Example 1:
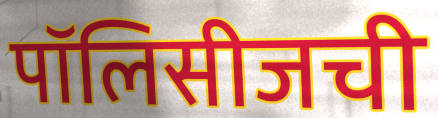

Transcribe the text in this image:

पॉलिसीजची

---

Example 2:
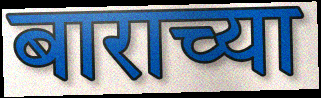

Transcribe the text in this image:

बाराच्या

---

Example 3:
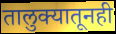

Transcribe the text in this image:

तालुक्यातूनही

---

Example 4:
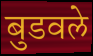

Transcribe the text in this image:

बुडवले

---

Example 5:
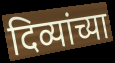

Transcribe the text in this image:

दिव्यांच्या